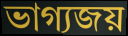
ভাগ্যজয়